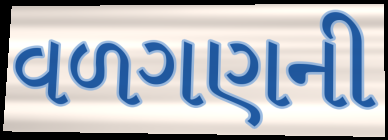
વળગણની